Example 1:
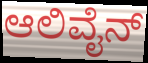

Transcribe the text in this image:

ಆಲಿವೈನ್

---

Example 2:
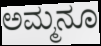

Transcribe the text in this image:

ಅಮ್ಮನೂ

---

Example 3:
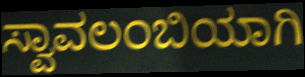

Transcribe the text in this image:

ಸ್ವಾವಲಂಬಿಯಾಗಿ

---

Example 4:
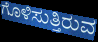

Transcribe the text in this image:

ಗೊಳಿಸುತ್ತಿರುವ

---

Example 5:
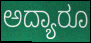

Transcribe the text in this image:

ಅದ್ಯಾರೂ